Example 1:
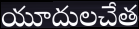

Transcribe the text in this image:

యూదులచేత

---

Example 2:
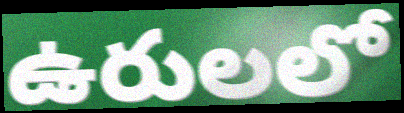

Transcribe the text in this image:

ఉరులలో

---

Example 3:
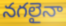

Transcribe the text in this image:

నగలైనా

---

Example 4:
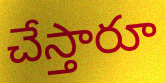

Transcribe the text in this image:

చేస్తారూ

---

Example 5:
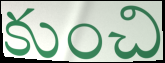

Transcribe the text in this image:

కుంచి